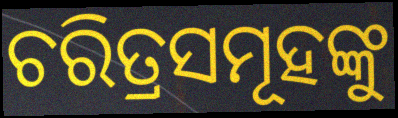
ଚରିତ୍ରସମୂହଙ୍କୁ